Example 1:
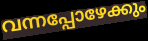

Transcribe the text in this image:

വന്നപ്പോഴേക്കും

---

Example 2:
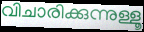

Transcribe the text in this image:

വിചാരിക്കുന്നുള്ളൂ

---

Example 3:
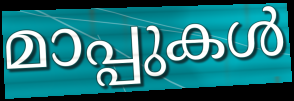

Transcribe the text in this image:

മാപ്പുകൾ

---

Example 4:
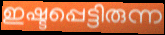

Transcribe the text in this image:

ഇഷ്ടപ്പെട്ടിരുന്ന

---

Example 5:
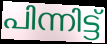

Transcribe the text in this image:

പിന്നിട്ട്